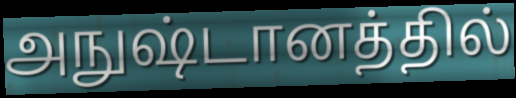
அநுஷ்டானத்தில்